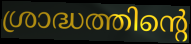
ശ്രാദ്ധത്തിന്റെ